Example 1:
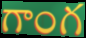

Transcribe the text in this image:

గాంగ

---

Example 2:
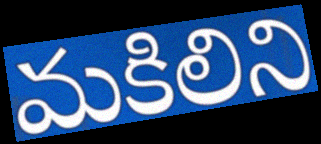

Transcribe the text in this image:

మకిలిని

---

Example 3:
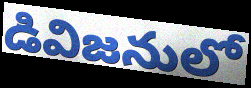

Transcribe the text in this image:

డివిజనులో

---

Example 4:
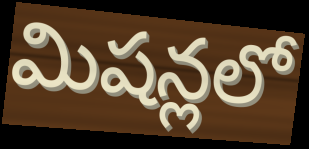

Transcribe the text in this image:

మిషన్లలో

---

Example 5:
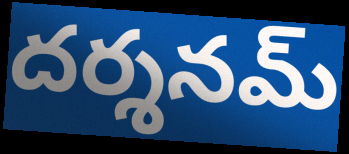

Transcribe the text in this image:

దర్శనమ్